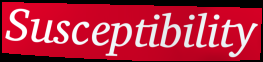
Susceptibility